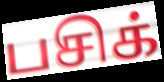
பசிக்